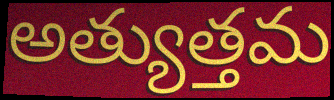
అత్యుత్తమ